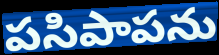
పసిపాపను